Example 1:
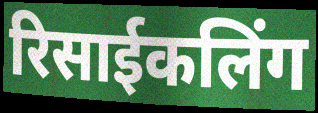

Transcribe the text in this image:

रिसाईकलिंग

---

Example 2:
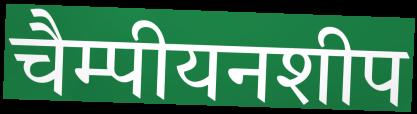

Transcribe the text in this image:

चैम्पीयनशीप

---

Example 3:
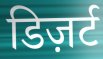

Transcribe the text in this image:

डिज़र्ट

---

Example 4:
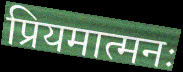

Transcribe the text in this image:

प्रियमात्मनः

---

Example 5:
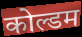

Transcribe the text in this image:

कोल्डम